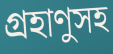
গ্রহাণুসহ